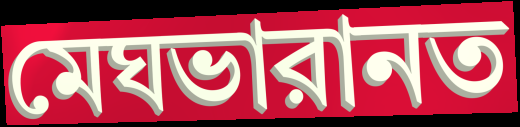
মেঘভারানত